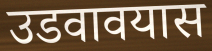
उडवावयास